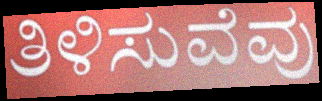
ತಿಳಿಸುವೆವು